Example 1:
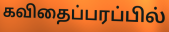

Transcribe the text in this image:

கவிதைப்பரப்பில்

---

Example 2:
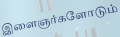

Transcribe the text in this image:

இளைஞர்களோடும்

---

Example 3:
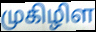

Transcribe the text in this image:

முகிழிள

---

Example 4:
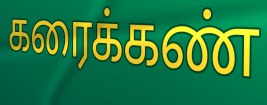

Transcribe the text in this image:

கரைக்கண்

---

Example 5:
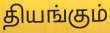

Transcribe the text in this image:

தியங்கும்